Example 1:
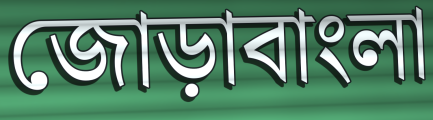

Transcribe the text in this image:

জোড়াবাংলা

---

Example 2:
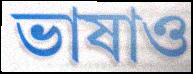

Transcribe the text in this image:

ভাষাও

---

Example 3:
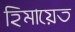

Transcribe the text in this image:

হিমায়েত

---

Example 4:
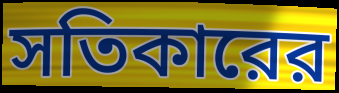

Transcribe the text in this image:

সতিকারের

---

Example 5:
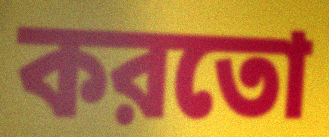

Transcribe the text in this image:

করতো